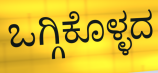
ಒಗ್ಗಿಕೊಳ್ಳದ